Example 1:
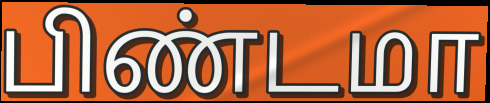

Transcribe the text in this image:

பிண்டமா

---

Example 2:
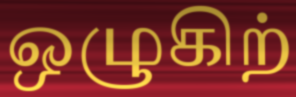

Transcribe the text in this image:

ஒழுகிற்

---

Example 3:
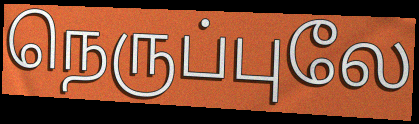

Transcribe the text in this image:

நெருப்புலே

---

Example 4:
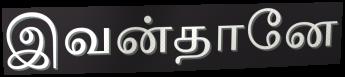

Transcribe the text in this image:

இவன்தானே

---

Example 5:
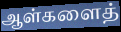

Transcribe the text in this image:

ஆள்களைத்